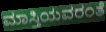
ಮಾಸ್ತಿಯವರಂತೆ